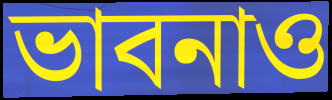
ভাবনাও